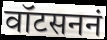
वॉटसननं